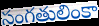
సంగతులింకా